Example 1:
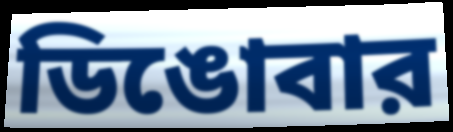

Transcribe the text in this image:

ডিঙোবার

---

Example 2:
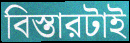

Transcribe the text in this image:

বিস্তারটাই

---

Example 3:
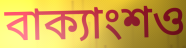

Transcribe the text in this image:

বাক্যাংশও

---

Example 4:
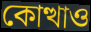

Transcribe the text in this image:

কোত্থাও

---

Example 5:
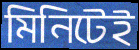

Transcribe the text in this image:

মিনিটেই